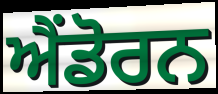
ਐਂਡੋਰਨ